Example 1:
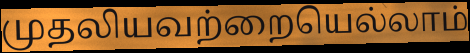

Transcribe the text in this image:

முதலியவற்றையெல்லாம்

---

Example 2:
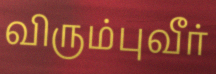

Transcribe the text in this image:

விரும்புவீர்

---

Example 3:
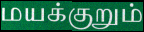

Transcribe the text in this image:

மயக்குறும்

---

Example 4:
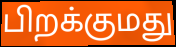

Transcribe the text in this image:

பிறக்குமது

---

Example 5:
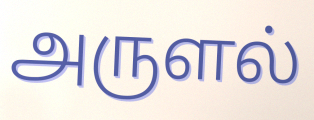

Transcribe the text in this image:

அருளல்